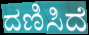
ದಣಿಸಿದೆ